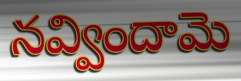
నవ్విందామె